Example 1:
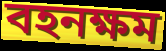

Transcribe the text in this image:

বহনক্ষম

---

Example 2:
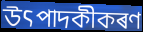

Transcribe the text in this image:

উৎপাদকীকৰণ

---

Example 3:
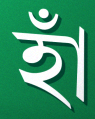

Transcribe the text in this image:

হাঁ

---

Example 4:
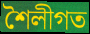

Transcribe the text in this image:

শৈলীগত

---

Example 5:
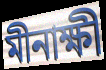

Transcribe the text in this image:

মীনাক্ষী